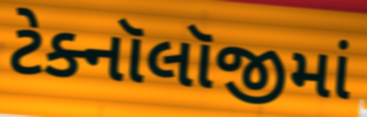
ટેક્નૉલૉજીમાં